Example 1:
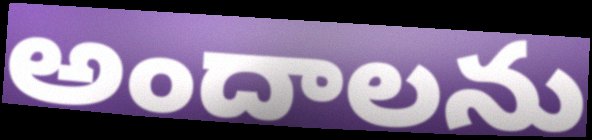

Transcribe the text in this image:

అందాలను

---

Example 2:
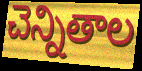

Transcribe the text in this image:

చెన్నితాల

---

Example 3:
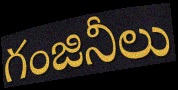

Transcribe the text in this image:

గంజినీలు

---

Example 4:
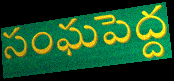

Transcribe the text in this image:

సంఘపెద్ద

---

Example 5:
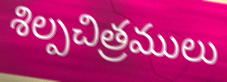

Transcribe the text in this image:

శిల్పచిత్రములు